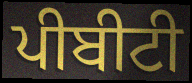
ਪੀਬੀਟੀ